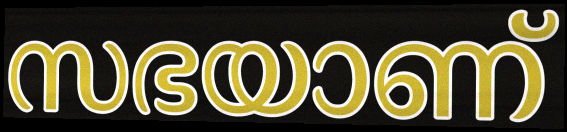
സഭയാണ്